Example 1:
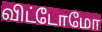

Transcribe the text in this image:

விட்டோமோ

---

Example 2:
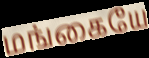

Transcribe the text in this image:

மங்கையே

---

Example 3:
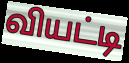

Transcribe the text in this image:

வியட்டி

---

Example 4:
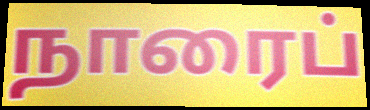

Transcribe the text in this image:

நாரைப்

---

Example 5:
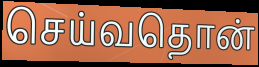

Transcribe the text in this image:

செய்வதொன்